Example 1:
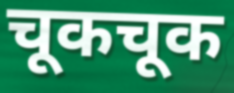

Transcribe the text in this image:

चूकचूक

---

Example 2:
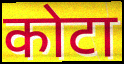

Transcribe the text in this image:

कोटा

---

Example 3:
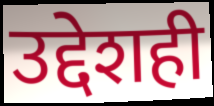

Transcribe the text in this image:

उद्देशही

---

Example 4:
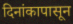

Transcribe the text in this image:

दिनांकापासून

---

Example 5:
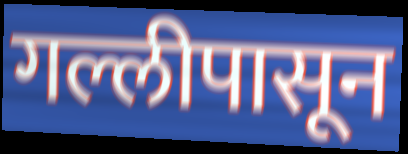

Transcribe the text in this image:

गल्लीपासून